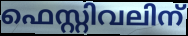
ഫെസ്റ്റിവലിന്